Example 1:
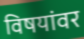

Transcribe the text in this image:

विषयांवर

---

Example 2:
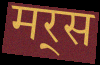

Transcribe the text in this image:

मर्स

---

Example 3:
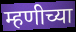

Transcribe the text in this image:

म्हणीच्या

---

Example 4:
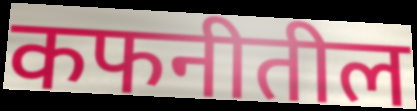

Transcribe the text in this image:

कफनीतील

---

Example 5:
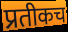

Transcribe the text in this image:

प्रतीकच